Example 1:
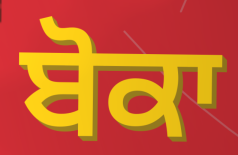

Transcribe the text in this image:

ਬੋਕਾ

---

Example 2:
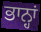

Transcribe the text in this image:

ਭਾਨ੍ਹਾਂ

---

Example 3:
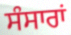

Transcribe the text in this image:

ਸੰਸਾਰਾਂ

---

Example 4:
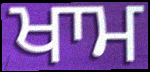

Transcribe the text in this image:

ਖਾਮ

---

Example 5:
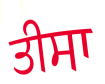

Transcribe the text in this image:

ਤੀਸਾ